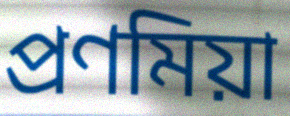
প্রণমিয়া